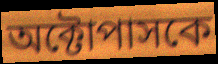
অক্টোপাসকে